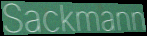
Sackmann